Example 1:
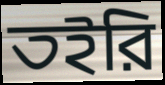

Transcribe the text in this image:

তইরি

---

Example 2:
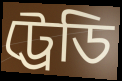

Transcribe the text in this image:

ট্রেডি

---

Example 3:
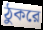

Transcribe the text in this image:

ঠুকরে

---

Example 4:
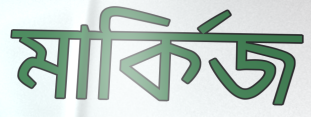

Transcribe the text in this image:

মার্কিজ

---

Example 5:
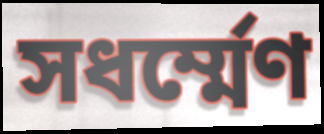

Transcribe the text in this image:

সধর্ম্মেণ